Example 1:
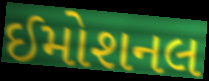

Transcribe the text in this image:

ઈમોશનલ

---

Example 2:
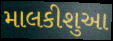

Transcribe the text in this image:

માલકીશુઆ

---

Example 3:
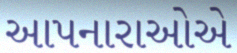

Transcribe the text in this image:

આપનારાઓએ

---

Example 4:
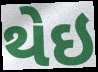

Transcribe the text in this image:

થેઇ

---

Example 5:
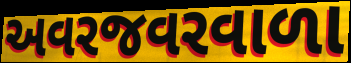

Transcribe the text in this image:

અવરજવરવાળા